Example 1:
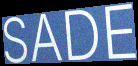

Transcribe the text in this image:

SADE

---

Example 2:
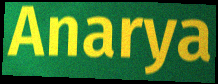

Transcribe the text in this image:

Anarya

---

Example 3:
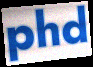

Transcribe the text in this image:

phd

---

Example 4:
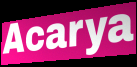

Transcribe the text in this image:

Acarya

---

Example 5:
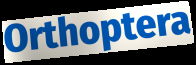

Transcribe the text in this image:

Orthoptera